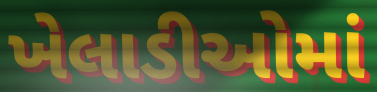
ખેલાડીઓમાં